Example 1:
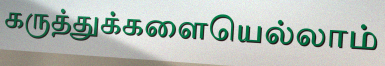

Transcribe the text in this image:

கருத்துக்களையெல்லாம்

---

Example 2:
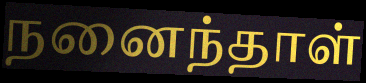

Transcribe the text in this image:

நனைந்தாள்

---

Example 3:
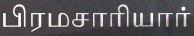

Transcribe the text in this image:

பிரமசாரியார்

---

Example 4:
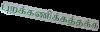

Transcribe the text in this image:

புறக்கணிக்கத்தக்க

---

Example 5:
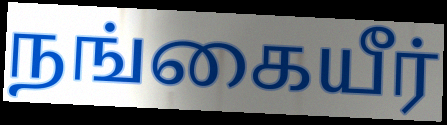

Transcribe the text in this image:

நங்கையீர்